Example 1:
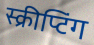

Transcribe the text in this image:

स्क्रीप्टिंग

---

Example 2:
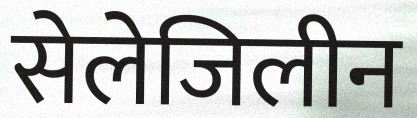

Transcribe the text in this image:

सेलेजिलीन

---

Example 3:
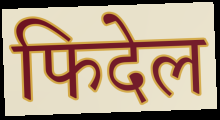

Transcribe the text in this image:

फिदेल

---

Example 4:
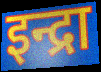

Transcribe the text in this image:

इन्द्रा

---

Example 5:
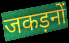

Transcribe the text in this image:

जकड़नों